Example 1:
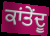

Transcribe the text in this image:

ਕਾਂਤੇਂਦੂ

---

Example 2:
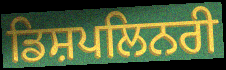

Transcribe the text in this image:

ਡਿਸ਼ਪਲਿਨਰੀ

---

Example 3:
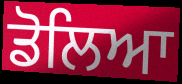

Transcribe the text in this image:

ਡੋਲਿਆ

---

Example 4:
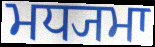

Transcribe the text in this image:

ਮਧ੍ਯਮਾ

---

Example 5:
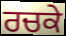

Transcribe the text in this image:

ਰਚਕੇ